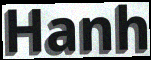
Hanh